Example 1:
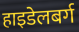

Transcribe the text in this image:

हाइडेलबर्ग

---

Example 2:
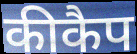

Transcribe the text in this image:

कीकैप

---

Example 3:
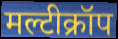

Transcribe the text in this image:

मल्टीक्रॉप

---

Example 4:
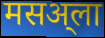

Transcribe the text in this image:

मसअ्ला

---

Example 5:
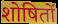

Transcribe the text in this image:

शोषितों